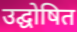
उद्घोषित